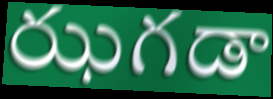
ఝగడా